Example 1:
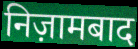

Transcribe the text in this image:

निज़ामबाद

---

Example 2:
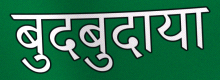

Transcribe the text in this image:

बुदबुदाया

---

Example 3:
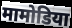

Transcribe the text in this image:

मामोडिया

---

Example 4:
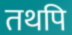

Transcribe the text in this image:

तथपि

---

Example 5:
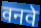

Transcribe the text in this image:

वनवे